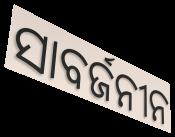
ସାବର୍ଜନୀନ